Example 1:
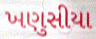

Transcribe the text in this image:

ખણુસીયા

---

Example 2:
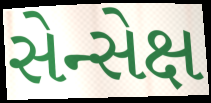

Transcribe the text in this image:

સેન્સેક્ષ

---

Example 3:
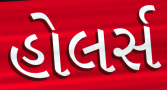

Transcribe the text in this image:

હોલર્સ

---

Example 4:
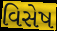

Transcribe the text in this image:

વિસેષ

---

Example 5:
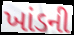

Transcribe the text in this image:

ખાંડની